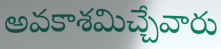
అవకాశమిచ్చేవారు